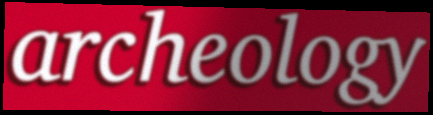
archeology